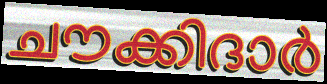
ചൗക്കിദാർ